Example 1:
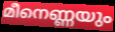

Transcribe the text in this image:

മീനെണ്ണയും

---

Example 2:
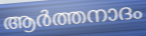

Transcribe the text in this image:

ആർത്തനാദം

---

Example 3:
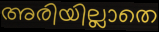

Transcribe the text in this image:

അരിയില്ലാതെ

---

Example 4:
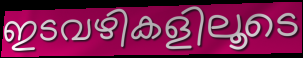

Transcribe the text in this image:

ഇടവഴികളിലൂടെ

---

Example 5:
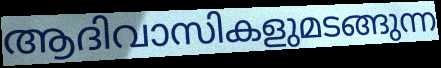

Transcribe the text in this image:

ആദിവാസികളുമടങ്ങുന്ന